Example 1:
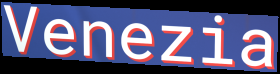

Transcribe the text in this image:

Venezia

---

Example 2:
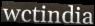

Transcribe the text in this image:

wctindia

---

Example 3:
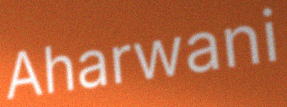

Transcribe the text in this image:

Aharwani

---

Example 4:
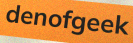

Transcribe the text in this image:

denofgeek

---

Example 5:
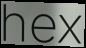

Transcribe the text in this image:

hex